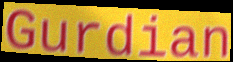
Gurdian